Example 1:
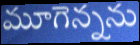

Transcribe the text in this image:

మూగెన్నను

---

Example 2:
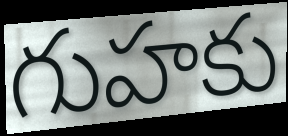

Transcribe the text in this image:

గుహకు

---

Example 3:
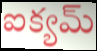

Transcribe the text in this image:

ఐక్యమ్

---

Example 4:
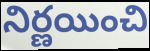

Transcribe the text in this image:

నిర్ణయించి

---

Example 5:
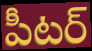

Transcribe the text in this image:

పీటర్